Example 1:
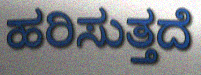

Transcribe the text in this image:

ಹರಿಸುತ್ತದೆ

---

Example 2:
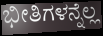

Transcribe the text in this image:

ಭೀತಿಗಳನ್ನೆಲ್ಲ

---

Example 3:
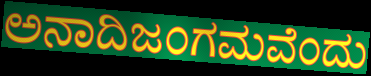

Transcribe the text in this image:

ಅನಾದಿಜಂಗಮವೆಂದು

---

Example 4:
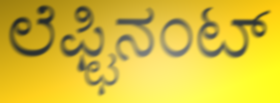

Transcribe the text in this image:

ಲೆಫ್ಟಿನಂಟ್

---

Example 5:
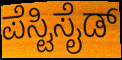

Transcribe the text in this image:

ಪೆಸ್ಟಿಸೈಡ್